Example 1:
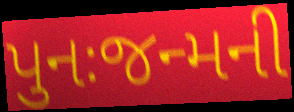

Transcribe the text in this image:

પુનઃજન્મની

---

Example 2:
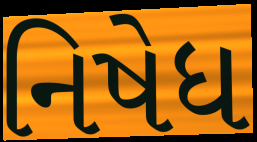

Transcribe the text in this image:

નિષેધ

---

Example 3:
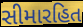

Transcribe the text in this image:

સીમારહિત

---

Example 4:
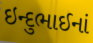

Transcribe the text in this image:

ઇન્દુભાઈનાં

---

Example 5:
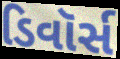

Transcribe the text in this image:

ડિવૉર્સ